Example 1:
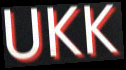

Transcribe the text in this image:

UKK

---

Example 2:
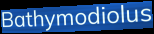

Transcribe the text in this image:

Bathymodiolus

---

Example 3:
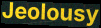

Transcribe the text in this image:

Jeolousy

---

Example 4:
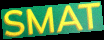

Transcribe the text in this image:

SMAT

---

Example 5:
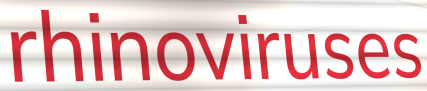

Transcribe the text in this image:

rhinoviruses